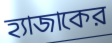
হ্যাজাকের